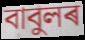
বাবুলৰ